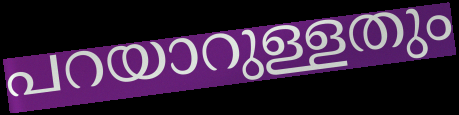
പറയാറുള്ളതും